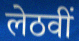
लेठवीं